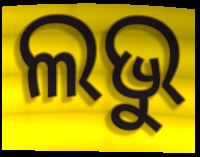
ଲଭୁ